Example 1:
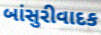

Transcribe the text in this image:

બાંસુરીવાદક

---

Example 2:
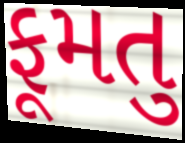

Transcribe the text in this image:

ફૂમતુ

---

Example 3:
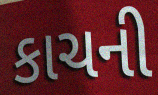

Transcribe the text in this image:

કાચની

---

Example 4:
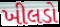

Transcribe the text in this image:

ખીલડો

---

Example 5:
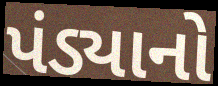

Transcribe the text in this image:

પંડ્યાનો